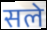
सले